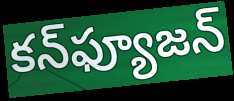
కన్‌ఫ్యూజన్